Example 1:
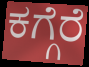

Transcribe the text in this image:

ಕಗ್ಗೆರೆ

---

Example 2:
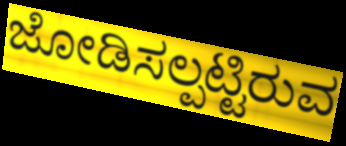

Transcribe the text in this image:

ಜೋಡಿಸಲ್ಪಟ್ಟಿರುವ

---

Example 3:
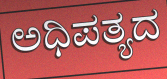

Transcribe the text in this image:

ಅಧಿಪತ್ಯದ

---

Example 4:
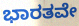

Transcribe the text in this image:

ಭಾರತವೇ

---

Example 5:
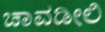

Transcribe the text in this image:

ಚಾವಡೀಲಿ